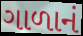
ગાળાનં